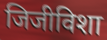
जिजीविशा